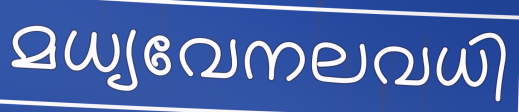
മധ്യവേനലവധി